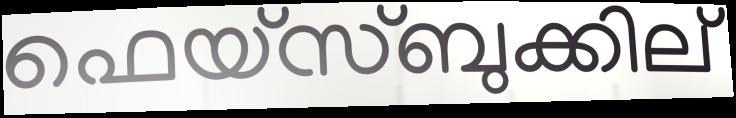
ഫെയ്സ്ബുക്കില്